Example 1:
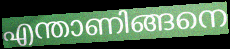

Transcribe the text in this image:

എന്താണിങ്ങനെ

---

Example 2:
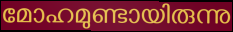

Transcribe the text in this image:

മോഹമുണ്ടായിരുന്നു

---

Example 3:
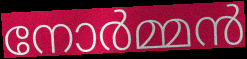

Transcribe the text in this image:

നോർമ്മൻ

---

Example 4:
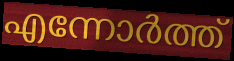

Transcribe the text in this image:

എന്നോർത്ത്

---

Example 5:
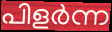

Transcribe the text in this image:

പിളർന്ന